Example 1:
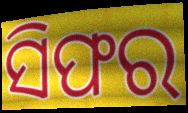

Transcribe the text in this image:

ସିଫର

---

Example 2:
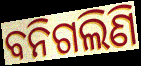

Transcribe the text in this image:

ବନିଗଲିଣି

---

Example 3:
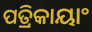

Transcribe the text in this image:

ପତ୍ରିକାୟାଂ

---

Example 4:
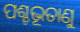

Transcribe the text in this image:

ପଶ୍ଚଭୂତାଣୁ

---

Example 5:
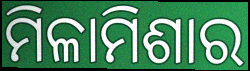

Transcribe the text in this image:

ମିଳାମିଶାର